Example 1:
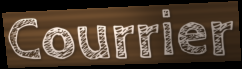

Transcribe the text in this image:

Courrier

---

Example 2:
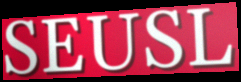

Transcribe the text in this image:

SEUSL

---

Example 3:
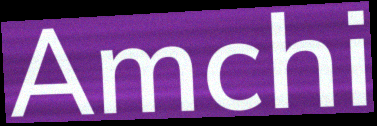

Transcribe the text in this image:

Amchi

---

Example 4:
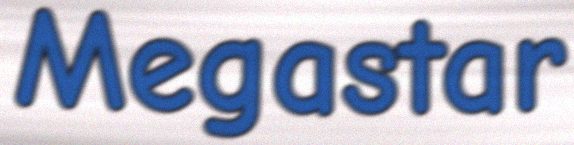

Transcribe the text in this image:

Megastar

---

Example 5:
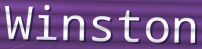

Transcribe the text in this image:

Winston